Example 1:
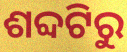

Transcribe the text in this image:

ଶବ୍ଦଟିରୁ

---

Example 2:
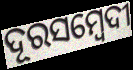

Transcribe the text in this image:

ଦୂରସମ୍ବେଦୀ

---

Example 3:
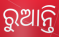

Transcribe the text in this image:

ରୁଆନ୍ତି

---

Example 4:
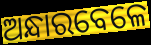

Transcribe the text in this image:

ଅନ୍ଧାରବେଳେ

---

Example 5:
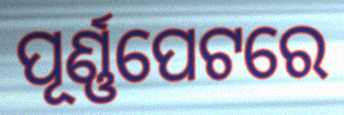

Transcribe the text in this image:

ପୂର୍ଣ୍ଣପେଟରେ